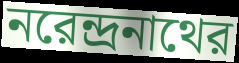
নরেন্দ্রনাথের